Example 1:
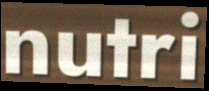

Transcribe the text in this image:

nutri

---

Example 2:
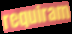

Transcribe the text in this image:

requiram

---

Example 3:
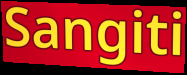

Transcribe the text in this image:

Sangiti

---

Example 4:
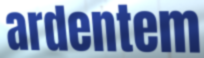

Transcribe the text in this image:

ardentem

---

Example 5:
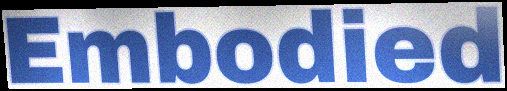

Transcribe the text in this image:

Embodied